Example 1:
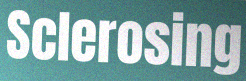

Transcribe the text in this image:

Sclerosing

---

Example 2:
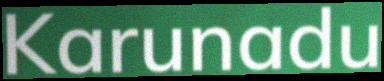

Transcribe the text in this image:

Karunadu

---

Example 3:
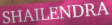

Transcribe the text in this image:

SHAILENDRA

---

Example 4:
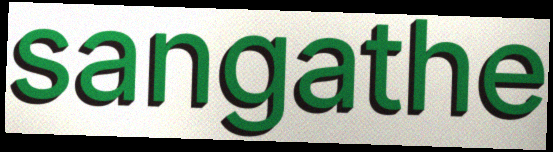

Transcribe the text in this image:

sangathe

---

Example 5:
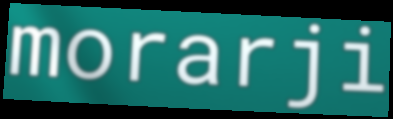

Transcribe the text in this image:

morarji